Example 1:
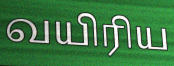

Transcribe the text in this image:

வயிரிய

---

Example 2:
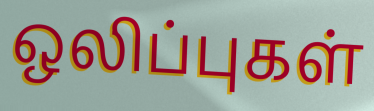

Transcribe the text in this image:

ஒலிப்புகள்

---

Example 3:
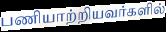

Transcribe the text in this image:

பணியாற்றியவர்களில்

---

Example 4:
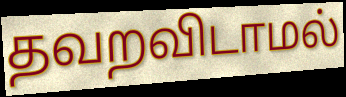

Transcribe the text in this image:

தவறவிடாமல்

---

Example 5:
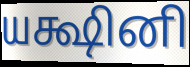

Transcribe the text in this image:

யக்ஷினி